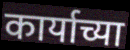
कार्याच्या